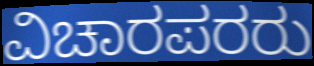
ವಿಚಾರಪರರು